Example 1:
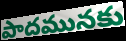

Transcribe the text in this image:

పాదమునకు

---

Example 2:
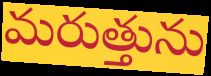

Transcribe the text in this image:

మరుత్తును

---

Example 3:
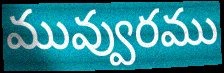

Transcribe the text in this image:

మువ్వురము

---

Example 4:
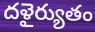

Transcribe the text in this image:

దళైర్యుతం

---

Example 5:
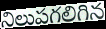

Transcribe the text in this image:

నిలుపగలిగిన